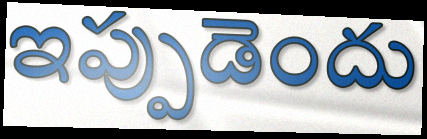
ఇప్పుడెందు